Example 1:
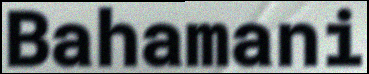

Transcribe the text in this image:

Bahamani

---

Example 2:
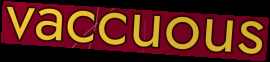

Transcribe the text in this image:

vaccuous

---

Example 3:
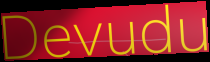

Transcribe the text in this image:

Devudu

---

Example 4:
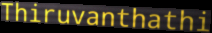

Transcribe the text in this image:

Thiruvanthathi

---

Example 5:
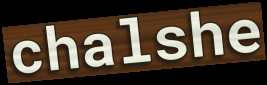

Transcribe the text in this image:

chalshe